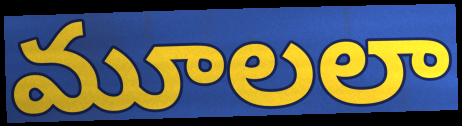
మూలలా